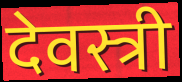
देवस्त्री